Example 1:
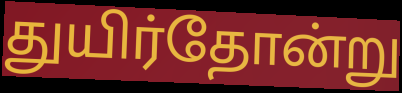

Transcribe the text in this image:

துயிர்தோன்று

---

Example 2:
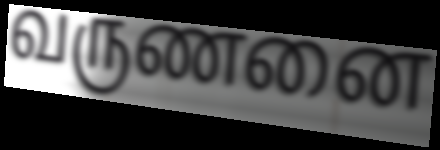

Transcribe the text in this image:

வருணனை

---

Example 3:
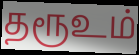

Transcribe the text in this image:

தரூஉம்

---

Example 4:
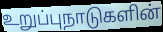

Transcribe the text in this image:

உறுப்புநாடுகளின்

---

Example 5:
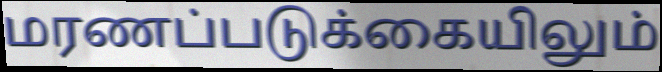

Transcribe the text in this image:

மரணப்படுக்கையிலும்